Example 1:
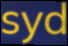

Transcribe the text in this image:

syd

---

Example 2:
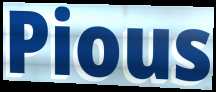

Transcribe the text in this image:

Pious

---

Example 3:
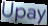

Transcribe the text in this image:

Upay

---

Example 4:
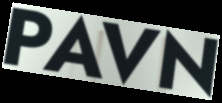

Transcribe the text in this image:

PAVN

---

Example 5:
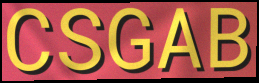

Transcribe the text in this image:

CSGAB